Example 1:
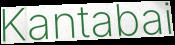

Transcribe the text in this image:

Kantabai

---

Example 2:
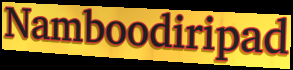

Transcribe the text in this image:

Namboodiripad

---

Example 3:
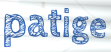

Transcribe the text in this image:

patige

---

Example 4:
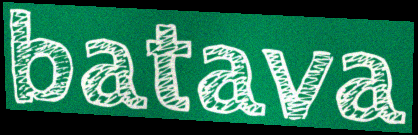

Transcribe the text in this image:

batava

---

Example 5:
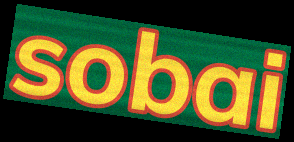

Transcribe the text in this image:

sobai